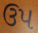
ઉપ